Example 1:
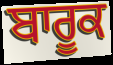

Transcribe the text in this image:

ਬਾਰੂਕ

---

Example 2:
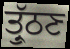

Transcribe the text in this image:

ਤ੍ਰੁੱਠਣ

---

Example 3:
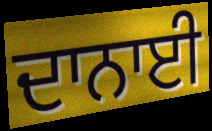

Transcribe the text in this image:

ਦਾਨਾਈ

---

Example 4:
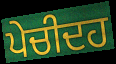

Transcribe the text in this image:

ਪੇਚੀਦਹ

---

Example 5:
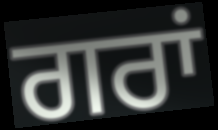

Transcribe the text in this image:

ਗਰਾਂ